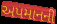
અપમાનની